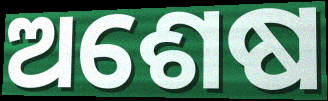
ଅଶେଷ